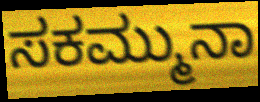
ಸಕಮ್ಮುನಾ